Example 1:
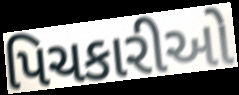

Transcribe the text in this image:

પિચકારીઓ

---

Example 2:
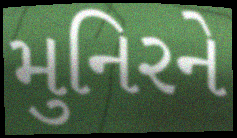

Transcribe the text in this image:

મુનિરને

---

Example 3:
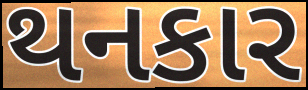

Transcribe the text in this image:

થનકાર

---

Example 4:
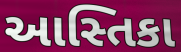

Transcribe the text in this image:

આસ્તિકા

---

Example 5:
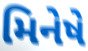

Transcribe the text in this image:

મિનેષે